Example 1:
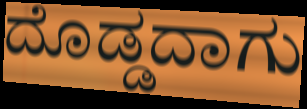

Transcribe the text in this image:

ದೊಡ್ಡದಾಗು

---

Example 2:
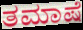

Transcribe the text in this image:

ತಮಾಷೆ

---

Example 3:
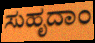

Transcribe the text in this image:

ಸುಹೃದಾಂ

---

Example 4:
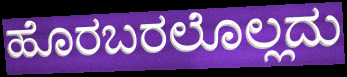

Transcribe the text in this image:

ಹೊರಬರಲೊಲ್ಲದು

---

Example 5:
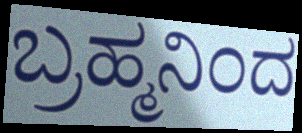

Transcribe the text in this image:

ಬ್ರಹ್ಮನಿಂದ